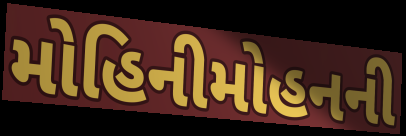
મોહિનીમોહનની